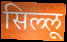
सिल्लू